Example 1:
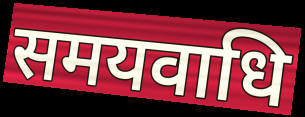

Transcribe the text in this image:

समयवाधि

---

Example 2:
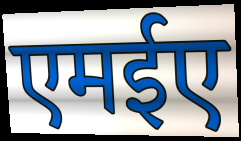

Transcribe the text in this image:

एमईए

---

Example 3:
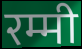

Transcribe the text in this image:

रम्मी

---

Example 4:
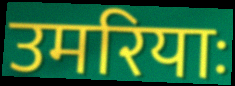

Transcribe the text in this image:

उमरियाः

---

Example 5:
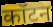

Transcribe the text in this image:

कॉटन